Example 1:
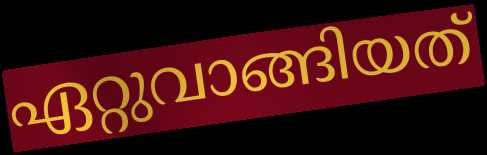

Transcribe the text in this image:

ഏറ്റുവാങ്ങിയത്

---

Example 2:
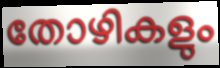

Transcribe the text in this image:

തോഴികളും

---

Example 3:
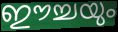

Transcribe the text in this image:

ഈച്ചയും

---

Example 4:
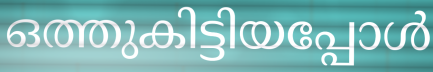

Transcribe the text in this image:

ഒത്തുകിട്ടിയപ്പോൾ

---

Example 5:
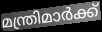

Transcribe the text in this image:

മന്ത്രിമാർക്ക്